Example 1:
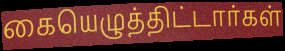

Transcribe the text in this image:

கையெழுத்திட்டார்கள்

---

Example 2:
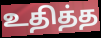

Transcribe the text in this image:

உதித்த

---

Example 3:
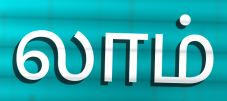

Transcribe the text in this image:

லாம்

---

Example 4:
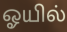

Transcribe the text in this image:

ஓயில்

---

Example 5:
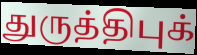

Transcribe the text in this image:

துருத்திபுக்